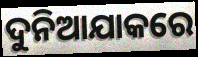
ଦୁନିଆଯାକରେ